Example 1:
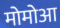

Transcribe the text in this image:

मोमोआ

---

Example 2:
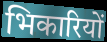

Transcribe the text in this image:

भिकारियों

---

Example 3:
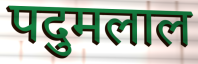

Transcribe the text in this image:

पदुमलाल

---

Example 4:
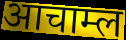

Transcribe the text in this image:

आचाम्ल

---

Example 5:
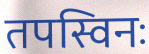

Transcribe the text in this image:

तपस्विनः